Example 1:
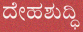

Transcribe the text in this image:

ದೇಹಶುದ್ಧಿ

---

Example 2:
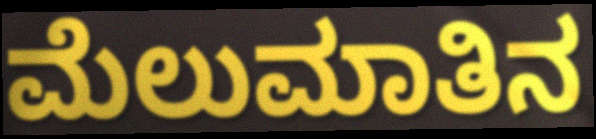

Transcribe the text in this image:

ಮೆಲುಮಾತಿನ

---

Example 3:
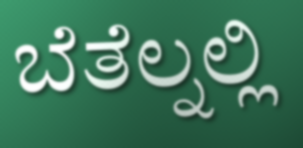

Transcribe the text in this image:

ಬೆತೆಲ್ನಲ್ಲಿ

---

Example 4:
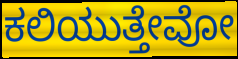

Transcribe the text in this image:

ಕಲಿಯುತ್ತೇವೋ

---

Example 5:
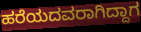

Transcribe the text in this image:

ಹರೆಯದವರಾಗಿದ್ದಾಗ